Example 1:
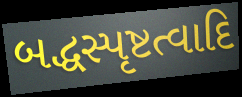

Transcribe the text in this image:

બદ્ધસ્પૃષ્ટત્વાદિ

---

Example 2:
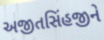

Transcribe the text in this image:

અજીતસિંહજીને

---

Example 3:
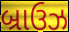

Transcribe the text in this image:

બ્રાઉઝ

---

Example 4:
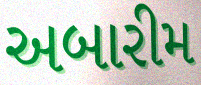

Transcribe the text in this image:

અબારીમ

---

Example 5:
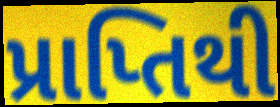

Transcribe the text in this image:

પ્રાપ્તિથી